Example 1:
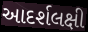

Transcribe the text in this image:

આદર્શલક્ષી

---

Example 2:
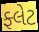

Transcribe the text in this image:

ફ્લેટ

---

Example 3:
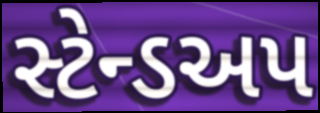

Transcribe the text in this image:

સ્ટેન્ડઅપ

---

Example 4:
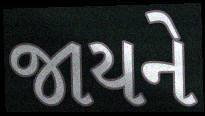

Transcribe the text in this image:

જાયને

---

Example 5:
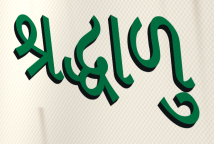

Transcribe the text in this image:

શ્રદ્ધાળુ